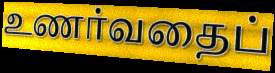
உணர்வதைப்